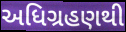
અધિગ્રહણથી